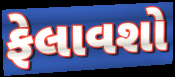
ફેલાવશો